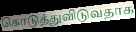
கொடுத்துவிடுவதாக